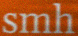
smh